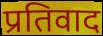
प्रतिवाद